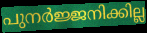
പുനർജ്ജനിക്കില്ല